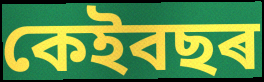
কেইবছৰ